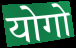
योगो